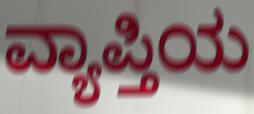
ವ್ಯಾಪ್ತಿಯ